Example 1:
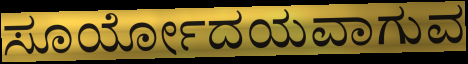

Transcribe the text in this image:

ಸೂರ್ಯೋದಯವಾಗುವ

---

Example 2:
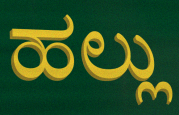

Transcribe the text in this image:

ಹಲ್ಲು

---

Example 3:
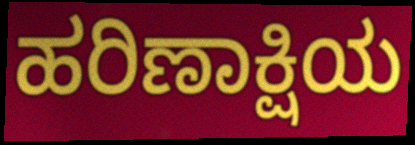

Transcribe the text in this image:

ಹರಿಣಾಕ್ಷಿಯ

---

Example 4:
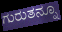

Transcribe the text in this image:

ಗುರುತನ್ನೂ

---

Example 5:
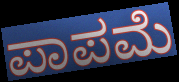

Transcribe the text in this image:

ಪಾಪಮೆ